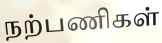
நற்பணிகள்